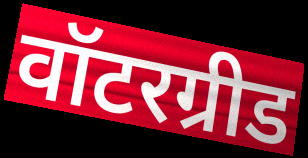
वॉटरग्रीड